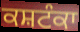
ਕਸ਼ਟੰਕਾ